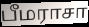
பீமராசா